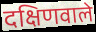
दक्षिणवाले